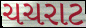
ચચરાટ